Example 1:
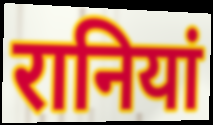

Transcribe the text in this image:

रानियां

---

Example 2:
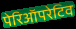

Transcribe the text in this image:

पेरिऑपरेटिव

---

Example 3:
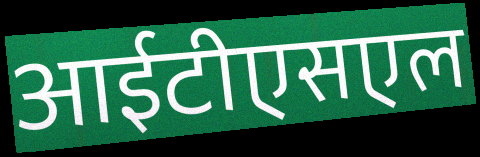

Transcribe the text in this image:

आईटीएसएल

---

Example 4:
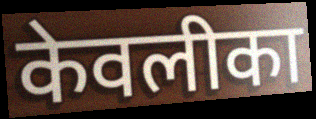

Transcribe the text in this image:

केवलीका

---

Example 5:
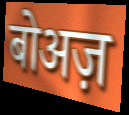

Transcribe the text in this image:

बोअज़